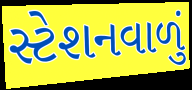
સ્ટેશનવાળું